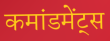
कमांडमेंट्स